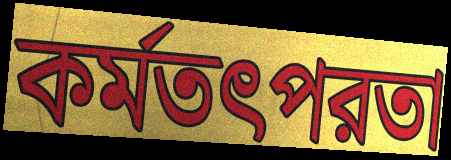
কর্মতৎপরতা